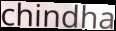
chindha